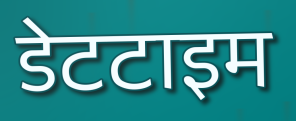
डेटटाइम